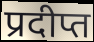
प्रदीप्त